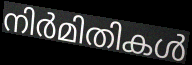
നിർമിതികൾ